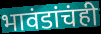
भावंडांचंही